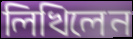
লিখিলেন